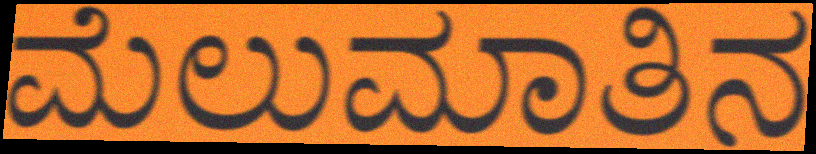
ಮೆಲುಮಾತಿನ